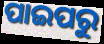
ପାଇପରୁ